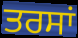
ਤਰਸਾਂ